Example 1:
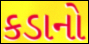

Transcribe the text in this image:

કડાનો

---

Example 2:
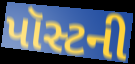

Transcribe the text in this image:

પૉસ્ટની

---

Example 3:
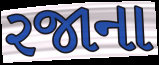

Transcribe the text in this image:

રજાના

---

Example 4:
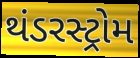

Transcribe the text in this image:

થંડરસ્ટ્રોમ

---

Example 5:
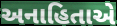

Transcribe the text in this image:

અનાહિતાએ